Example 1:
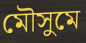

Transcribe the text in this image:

মৌসুমে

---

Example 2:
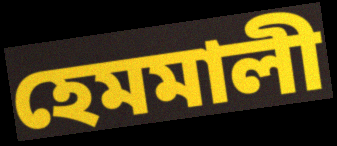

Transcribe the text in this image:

হেমমালী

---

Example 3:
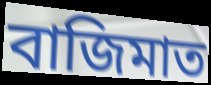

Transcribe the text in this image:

বাজিমাত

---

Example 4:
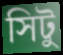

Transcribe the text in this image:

সিটু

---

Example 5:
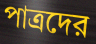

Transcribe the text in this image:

পাত্রদের